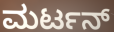
ಮರ್ಟನ್